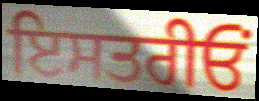
ਇਸਤਰੀਓਂ